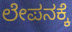
ಲೇಪನಕ್ಕೆ